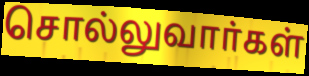
சொல்லுவார்கள்